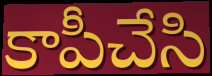
కాపీచేసి